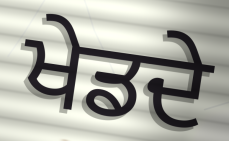
ਖੇਡਦੇ